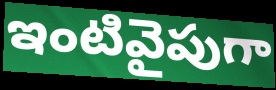
ఇంటివైపుగా